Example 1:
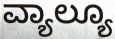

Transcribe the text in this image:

ವ್ಯಾಲ್ಯೂ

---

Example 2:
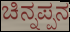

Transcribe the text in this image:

ಚಿನ್ನಪ್ಪನ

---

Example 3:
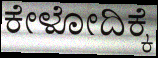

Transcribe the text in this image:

ಕೇಳೋದಿಕ್ಕೆ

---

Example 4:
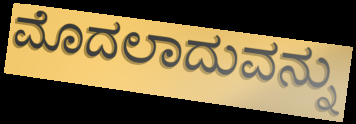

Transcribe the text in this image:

ಮೊದಲಾದುವನ್ನು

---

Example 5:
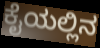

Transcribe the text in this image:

ಕೈಯಲ್ಲಿನ